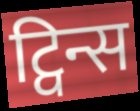
ट्विन्स